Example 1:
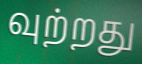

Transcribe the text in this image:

வுற்றது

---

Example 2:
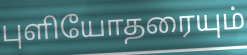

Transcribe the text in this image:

புளியோதரையும்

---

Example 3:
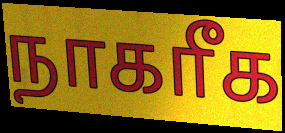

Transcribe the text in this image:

நாகரீக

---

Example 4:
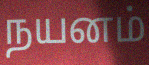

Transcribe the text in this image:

நயனம்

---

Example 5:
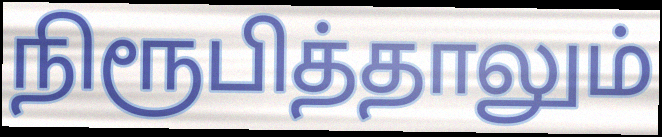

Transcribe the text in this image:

நிரூபித்தாலும்